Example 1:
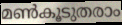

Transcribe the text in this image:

മൺകൂടുതരാം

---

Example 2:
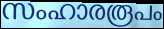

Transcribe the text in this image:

സംഹാരരൂപം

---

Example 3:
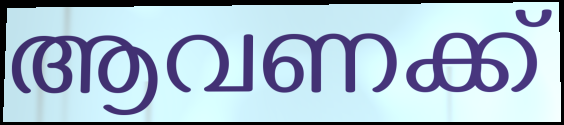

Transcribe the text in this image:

ആവണക്ക്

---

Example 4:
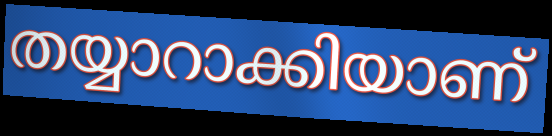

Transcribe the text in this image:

തയ്യാറാക്കിയാണ്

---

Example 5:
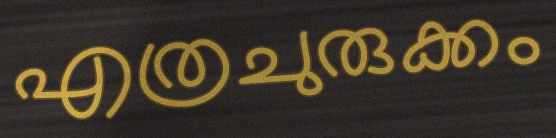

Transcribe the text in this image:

എത്രചുരുക്കം